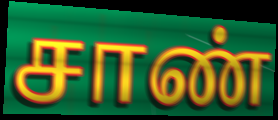
சாண்